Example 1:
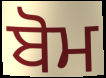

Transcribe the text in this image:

ਬੋਮ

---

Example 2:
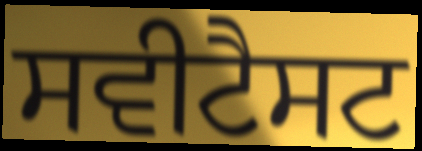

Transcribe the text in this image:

ਸਵੀਟੈਸਟ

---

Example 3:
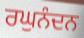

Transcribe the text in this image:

ਰਘੁਨੰਦਨ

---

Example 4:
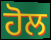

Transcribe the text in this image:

ਹੋਲ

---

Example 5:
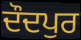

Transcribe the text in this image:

ਦੌਦਪੁਰ